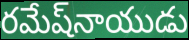
రమేష్‌నాయుడు